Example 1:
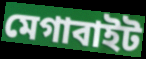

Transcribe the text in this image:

মেগাবাইট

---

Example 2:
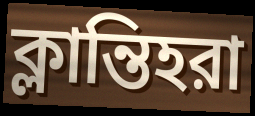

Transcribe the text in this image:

ক্লান্তিহরা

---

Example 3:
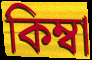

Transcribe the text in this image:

কিম্বা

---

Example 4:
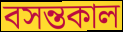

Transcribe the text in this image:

বসন্তকাল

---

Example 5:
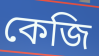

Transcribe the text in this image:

কেজি